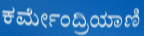
ಕರ್ಮೇಂದ್ರಿಯಾಣಿ